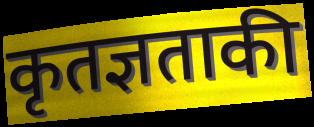
कृतज्ञताकी